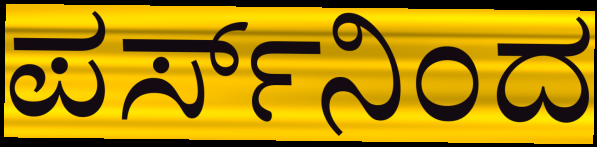
ಪರ್ಸ್‌ನಿಂದ